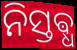
ନିସ୍ତଵ୍ଧ